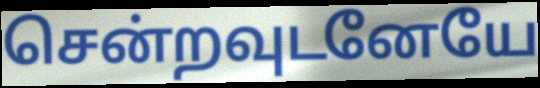
சென்றவுடனேயே